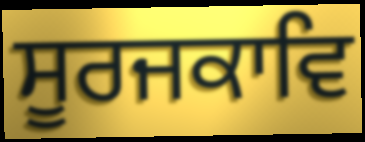
ਸੂਰਜਕਾਵਿ